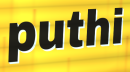
puthi